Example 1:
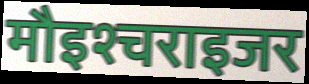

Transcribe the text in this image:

मौइश्चराइजर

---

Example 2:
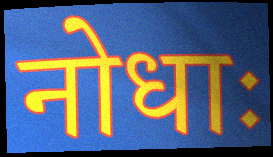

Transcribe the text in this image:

नोधाः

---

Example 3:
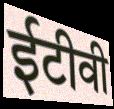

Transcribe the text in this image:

ईटीवी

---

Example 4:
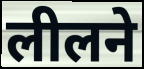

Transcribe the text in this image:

लीलने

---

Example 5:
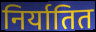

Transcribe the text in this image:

निर्यातित